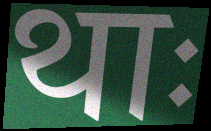
थाः